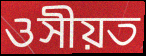
ওসীয়ত